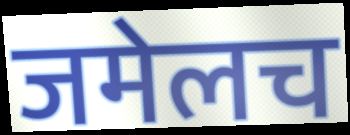
जमेलच